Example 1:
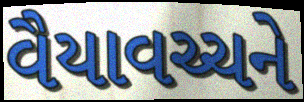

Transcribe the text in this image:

વૈયાવચ્ચને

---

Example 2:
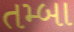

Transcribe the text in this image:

તમ્બા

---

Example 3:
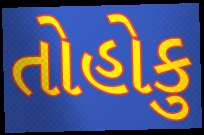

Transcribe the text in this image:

તોહોકુ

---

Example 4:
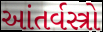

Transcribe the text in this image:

આંતર્વસ્ત્રો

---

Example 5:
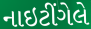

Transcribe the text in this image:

નાઇટીંગેલે